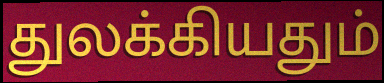
துலக்கியதும்